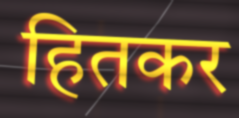
हितकर